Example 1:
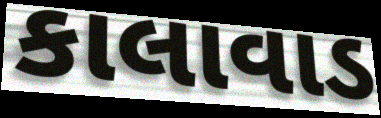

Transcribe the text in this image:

કાલાવાડ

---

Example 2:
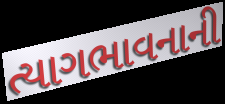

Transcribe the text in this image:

ત્યાગભાવનાની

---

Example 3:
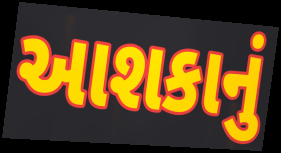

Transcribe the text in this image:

આશકાનું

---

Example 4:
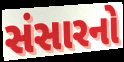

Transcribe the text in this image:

સંસારનો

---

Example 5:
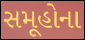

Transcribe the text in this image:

સમૂહોના